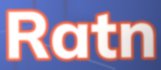
Ratn